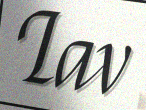
Iav